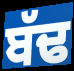
ਬੱਢ